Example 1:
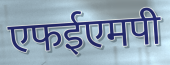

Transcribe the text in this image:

एफईएमपी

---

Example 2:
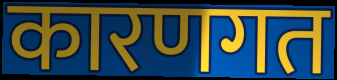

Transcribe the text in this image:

कारणगत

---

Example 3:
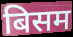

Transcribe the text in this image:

बिसम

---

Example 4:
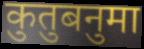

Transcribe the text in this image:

कुतुबनुमा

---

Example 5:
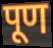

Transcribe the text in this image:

पूण